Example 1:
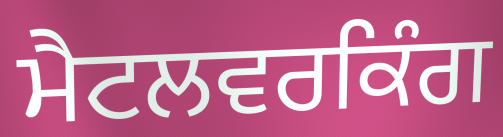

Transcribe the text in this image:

ਮੈਟਲਵਰਕਿੰਗ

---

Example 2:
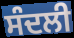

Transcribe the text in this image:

ਸੰਦਲੀ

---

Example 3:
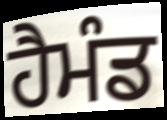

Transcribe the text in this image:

ਹੈਮੰਡ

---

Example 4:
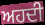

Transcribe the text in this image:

ਅਹਦੀ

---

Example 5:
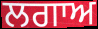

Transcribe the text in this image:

ਲਗਾਅ